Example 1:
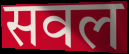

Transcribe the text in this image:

सवल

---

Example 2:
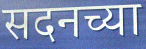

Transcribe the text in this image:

सदनच्या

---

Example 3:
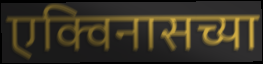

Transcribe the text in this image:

एक्विनासच्या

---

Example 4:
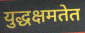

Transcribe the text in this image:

युद्धक्षमतेत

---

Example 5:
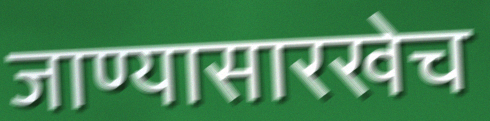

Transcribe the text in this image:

जाण्यासारखेच